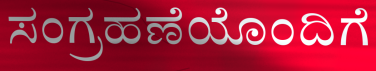
ಸಂಗ್ರಹಣೆಯೊಂದಿಗೆ